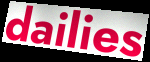
dailies